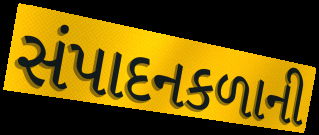
સંપાદનકળાની